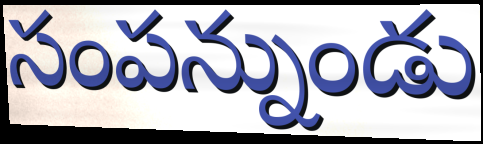
సంపన్నుండు